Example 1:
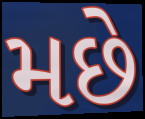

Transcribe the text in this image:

મછે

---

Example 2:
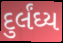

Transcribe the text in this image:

દુર્લંઘ્ય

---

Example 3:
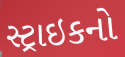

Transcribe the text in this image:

સ્ટ્રાઇકનો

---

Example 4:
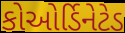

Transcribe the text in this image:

કોઓર્ડિનેટેડ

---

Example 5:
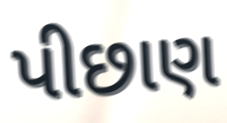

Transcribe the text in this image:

પીછાણ